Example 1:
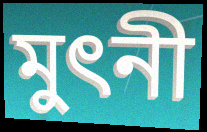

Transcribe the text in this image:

মুৎনী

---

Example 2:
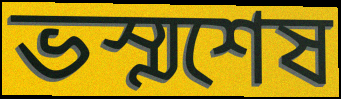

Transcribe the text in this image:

ভস্মশেষ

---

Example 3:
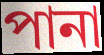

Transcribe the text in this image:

পানা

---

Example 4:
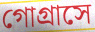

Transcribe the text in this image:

গোগ্রাসে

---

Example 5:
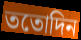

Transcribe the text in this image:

ততোদিন